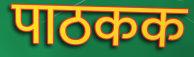
पाठकक